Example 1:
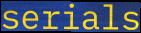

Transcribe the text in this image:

serials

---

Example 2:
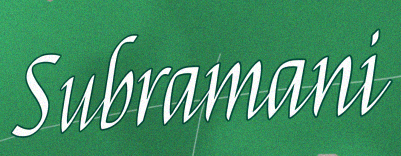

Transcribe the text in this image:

Subramani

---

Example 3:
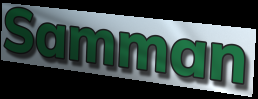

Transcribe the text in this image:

Samman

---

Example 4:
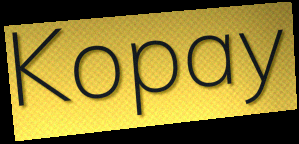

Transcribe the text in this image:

Kopay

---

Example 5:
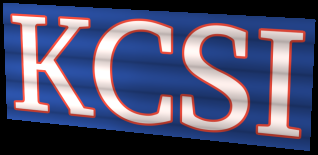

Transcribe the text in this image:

KCSI